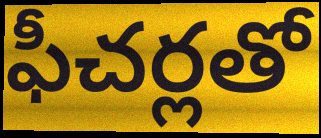
ఫీచర్లతో